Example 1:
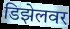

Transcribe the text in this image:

डिझेलवर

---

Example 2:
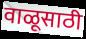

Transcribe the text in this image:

वाळूसाठी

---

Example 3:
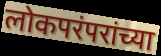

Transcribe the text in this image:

लोकपरंपरांच्या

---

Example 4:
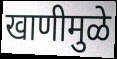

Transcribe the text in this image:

खाणीमुळे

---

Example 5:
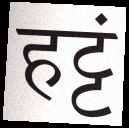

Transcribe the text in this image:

हट्टं